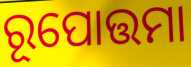
ରୂପୋତ୍ତମା